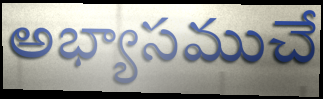
అభ్యాసముచే